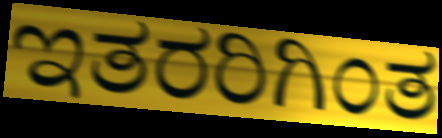
ಇತರರಿಗಿಂತ